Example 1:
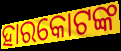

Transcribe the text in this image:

ହାରକୋଟଙ୍କ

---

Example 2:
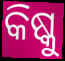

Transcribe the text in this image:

କିଷ୍କୁ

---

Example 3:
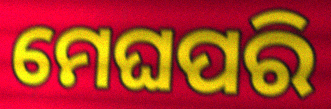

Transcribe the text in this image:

ମେଘପରି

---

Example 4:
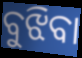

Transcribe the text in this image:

ବୁଝିବା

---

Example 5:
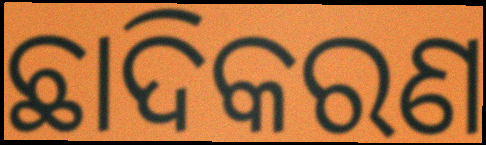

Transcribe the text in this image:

ଛାଦିକରଣ